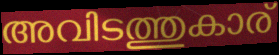
അവിടത്തുകാര്